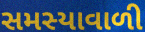
સમસ્યાવાળી